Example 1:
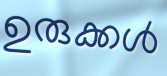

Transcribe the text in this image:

ഉരുക്കൾ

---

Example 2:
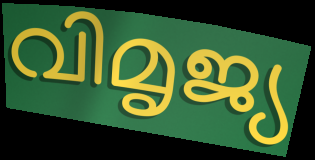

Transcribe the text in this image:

വിമൃജ്യ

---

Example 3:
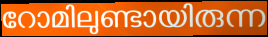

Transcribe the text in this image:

റോമിലുണ്ടായിരുന്ന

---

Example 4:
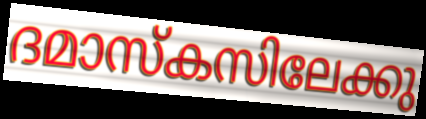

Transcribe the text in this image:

ദമാസ്കസിലേക്കു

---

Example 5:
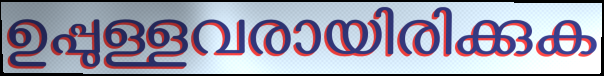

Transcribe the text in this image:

ഉപ്പുള്ളവരായിരിക്കുക